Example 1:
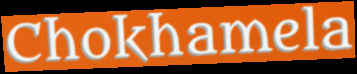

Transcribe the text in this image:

Chokhamela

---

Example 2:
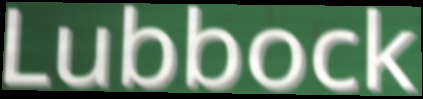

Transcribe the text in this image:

Lubbock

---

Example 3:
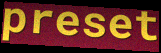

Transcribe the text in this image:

preset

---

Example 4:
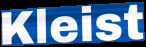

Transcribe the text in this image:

Kleist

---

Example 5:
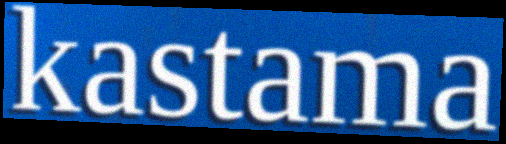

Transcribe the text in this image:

kastama